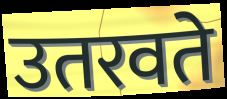
उतरवते